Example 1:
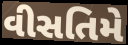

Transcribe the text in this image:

વીસતિમે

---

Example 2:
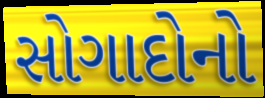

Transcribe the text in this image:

સોગાદોનો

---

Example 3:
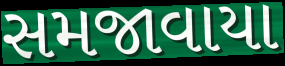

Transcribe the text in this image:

સમજાવાયા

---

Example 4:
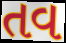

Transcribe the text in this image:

તવ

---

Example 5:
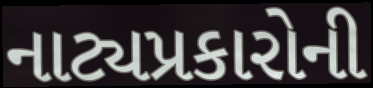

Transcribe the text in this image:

નાટ્યપ્રકારોની